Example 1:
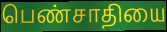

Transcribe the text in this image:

பெண்சாதியை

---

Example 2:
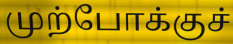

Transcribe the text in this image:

முற்போக்குச்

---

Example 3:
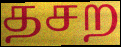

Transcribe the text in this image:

தசற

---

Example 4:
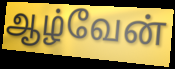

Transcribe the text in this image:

ஆழ்வேன்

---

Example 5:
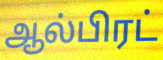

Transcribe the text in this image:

ஆல்பிரட்